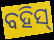
ବହିସ୍